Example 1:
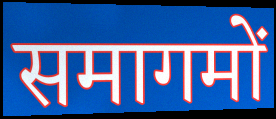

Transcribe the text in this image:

समागमों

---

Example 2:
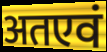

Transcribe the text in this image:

अतएवं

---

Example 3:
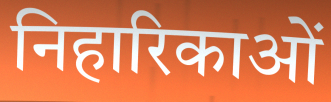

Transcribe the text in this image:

निहारिकाओं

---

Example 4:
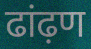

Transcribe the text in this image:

ढांढ़ण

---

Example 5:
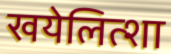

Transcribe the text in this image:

खयेलित्शा